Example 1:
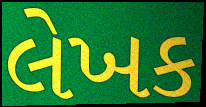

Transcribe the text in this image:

લેખક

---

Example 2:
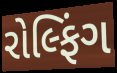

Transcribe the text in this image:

રોલ્ફિંગ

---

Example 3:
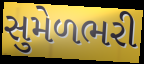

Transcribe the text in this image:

સુમેળભરી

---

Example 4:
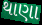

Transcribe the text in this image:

થાણા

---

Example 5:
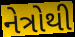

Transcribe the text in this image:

નેત્રોથી